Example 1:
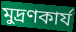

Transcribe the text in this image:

মুদ্রণকার্য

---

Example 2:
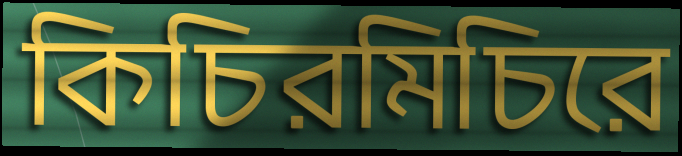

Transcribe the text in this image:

কিচিরমিচিরে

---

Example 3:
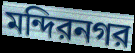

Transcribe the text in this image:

মন্দিরনগর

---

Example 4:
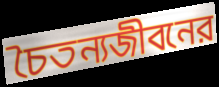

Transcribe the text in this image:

চৈতন্যজীবনের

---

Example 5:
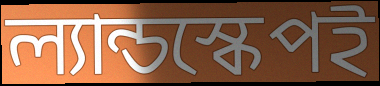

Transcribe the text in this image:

ল্যান্ডস্কেপই